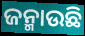
ଜନ୍ମାଉଛି